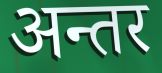
अन्तर